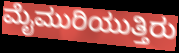
ಮೈಮುರಿಯುತ್ತಿರು